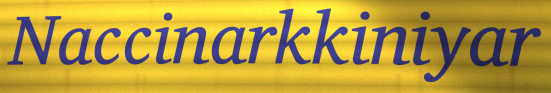
Naccinarkkiniyar